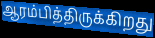
ஆரம்பித்திருக்கிறது